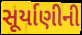
સૂર્યાણીની